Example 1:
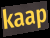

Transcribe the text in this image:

kaap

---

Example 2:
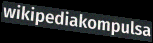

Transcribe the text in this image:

wikipediakompulsa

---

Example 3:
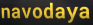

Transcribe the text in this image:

navodaya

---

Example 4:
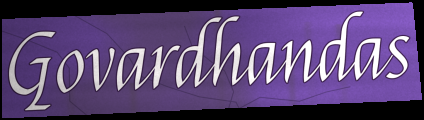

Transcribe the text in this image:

Govardhandas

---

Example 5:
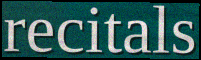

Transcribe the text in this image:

recitals